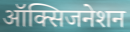
ऑक्सिजनेशन